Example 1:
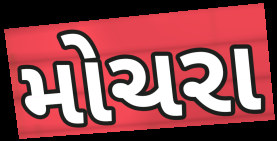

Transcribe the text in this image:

મોચરા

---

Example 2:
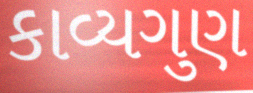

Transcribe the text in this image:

કાવ્યગુણ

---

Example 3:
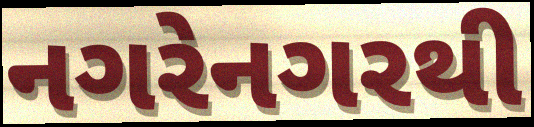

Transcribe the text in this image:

નગરેનગરથી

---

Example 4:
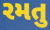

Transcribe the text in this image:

રમતુ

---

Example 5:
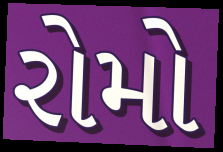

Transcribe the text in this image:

રોમો